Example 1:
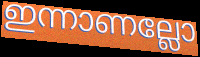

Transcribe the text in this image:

ഇന്നാണല്ലോ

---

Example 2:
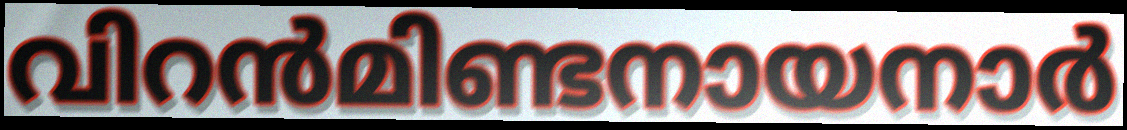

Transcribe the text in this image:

വിറൻമിണ്ടനായനാർ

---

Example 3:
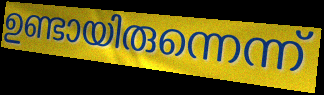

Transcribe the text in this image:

ഉണ്ടായിരുന്നെന്ന്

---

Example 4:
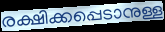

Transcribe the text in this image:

രക്ഷിക്കപ്പെടാനുള്ള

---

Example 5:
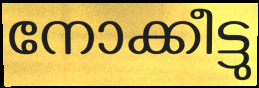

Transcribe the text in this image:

നോക്കീട്ടു